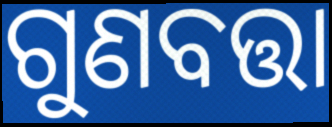
ଗୁଣବତ୍ତା